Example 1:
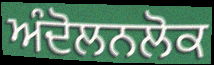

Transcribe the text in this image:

ਅੰਦੋਲਨਲੋਕ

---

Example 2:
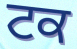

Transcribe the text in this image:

ਟਕ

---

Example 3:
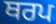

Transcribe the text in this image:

ਥਰਪ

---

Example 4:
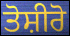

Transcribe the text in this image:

ਤੋਸ਼ੀਰੋ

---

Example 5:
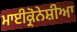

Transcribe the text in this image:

ਮਾਈਕ੍ਰੋਨੇਸ਼ੀਆ